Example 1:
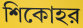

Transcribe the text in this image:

শিকোহর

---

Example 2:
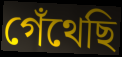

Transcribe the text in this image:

গেঁথেছি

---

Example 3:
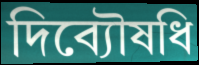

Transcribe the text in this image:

দিব্যৌষধি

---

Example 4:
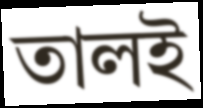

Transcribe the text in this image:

তালই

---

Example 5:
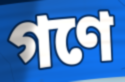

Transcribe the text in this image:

গণে